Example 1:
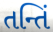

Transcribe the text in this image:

તન્તિં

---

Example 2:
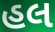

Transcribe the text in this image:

હલ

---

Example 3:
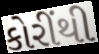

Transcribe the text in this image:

કોરીંથી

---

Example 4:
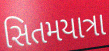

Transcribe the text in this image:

સિતમયાત્રા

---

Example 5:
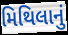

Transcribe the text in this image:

મિથિલાનું